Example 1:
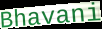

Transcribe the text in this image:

Bhavani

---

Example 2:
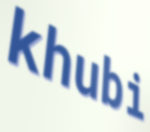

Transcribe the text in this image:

khubi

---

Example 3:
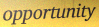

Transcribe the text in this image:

opportunity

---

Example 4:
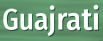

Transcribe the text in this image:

Guajrati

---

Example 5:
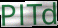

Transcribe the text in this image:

PITd